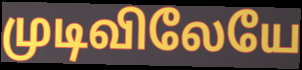
முடிவிலேயே